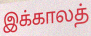
இக்காலத்